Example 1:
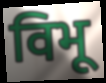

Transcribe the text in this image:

विभू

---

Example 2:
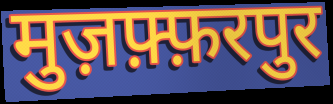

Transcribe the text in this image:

मुज़फ़्फ़रपुर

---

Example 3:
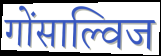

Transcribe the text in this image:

गोंसाल्विज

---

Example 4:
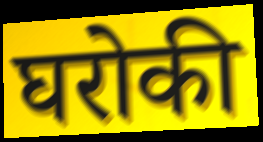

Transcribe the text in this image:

घरोकी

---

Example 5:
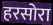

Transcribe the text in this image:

हरसोरा